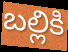
బల్లికి